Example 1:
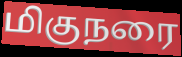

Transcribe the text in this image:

மிகுநரை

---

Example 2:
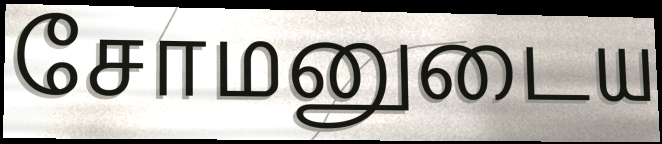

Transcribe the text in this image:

சோமனுடைய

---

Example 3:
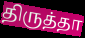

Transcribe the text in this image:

திருத்தா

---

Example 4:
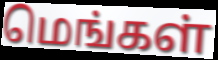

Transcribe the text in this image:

மெங்கள்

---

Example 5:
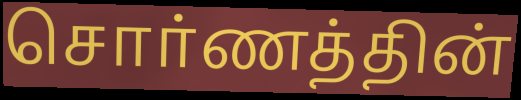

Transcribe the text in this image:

சொர்ணத்தின்